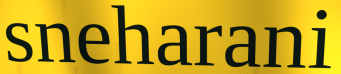
sneharani